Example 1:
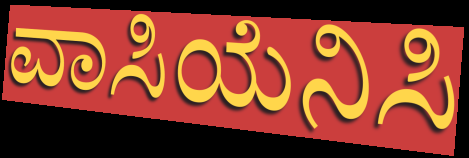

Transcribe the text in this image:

ವಾಸಿಯೆನಿಸಿ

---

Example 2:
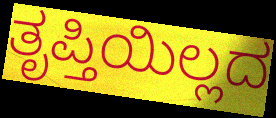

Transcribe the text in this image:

ತೃಪ್ತಿಯಿಲ್ಲದ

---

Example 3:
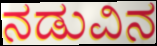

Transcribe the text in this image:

ನಡುವಿನ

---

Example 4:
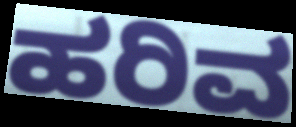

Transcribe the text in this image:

ಹರಿವ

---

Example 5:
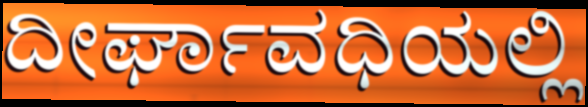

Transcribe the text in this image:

ದೀರ್ಘಾವಧಿಯಲ್ಲಿ